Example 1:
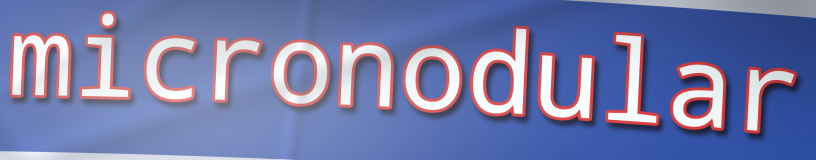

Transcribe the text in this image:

micronodular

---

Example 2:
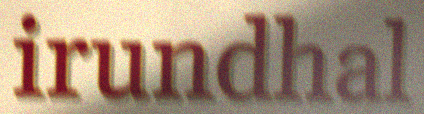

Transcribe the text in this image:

irundhal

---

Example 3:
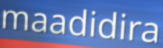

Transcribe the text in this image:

maadidira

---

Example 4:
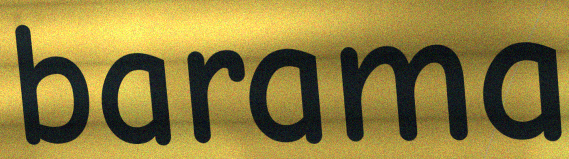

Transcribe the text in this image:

barama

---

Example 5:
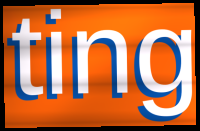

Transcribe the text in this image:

ting